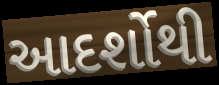
આદર્શોથી